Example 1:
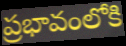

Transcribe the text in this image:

ప్రభావంలోకి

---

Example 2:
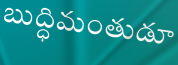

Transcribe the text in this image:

బుద్ధిమంతుడూ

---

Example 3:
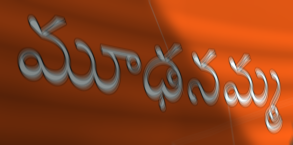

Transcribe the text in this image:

మూఢనమ్మ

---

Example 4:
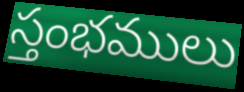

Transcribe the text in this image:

స్తంభములు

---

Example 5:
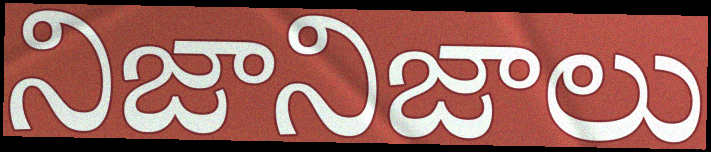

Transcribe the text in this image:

నిజానిజాలు